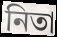
নিতা